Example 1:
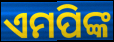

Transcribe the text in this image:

ଏମପିଙ୍କ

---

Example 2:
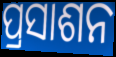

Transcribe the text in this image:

ପ୍ରସାଶନ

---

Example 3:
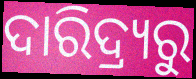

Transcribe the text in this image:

ଦାରିଦ୍ର୍ୟରୁ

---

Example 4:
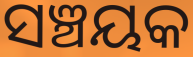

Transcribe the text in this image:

ସଞ୍ଚୟକ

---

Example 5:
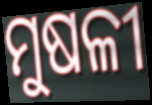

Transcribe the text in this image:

ମୁଷଳୀ